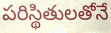
పరిస్థితులతోనే